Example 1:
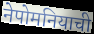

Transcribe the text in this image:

नेपोमनियाची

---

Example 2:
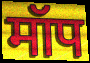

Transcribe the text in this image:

मॉप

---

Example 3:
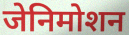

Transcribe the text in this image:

जेनिमोशन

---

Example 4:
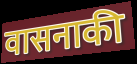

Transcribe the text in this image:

वासनाकी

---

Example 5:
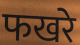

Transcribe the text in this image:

फखरे